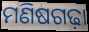
ମଣିଷଗଢ଼ା